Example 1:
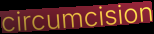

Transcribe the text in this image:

circumcision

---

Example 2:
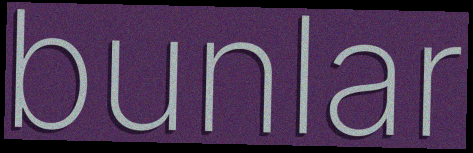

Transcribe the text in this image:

bunlar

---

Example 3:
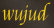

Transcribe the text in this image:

wujud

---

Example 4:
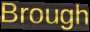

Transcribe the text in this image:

Brough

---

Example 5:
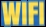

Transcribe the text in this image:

WIFI